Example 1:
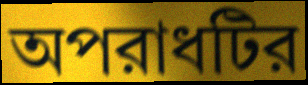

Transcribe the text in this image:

অপরাধটির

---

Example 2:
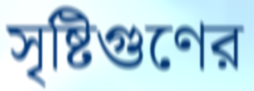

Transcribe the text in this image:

সৃষ্টিগুণের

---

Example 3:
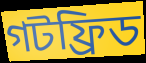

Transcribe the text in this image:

গটফ্রিড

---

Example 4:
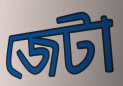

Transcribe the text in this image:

জেটা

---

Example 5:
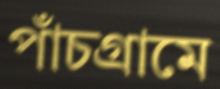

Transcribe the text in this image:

পাঁচগ্রামে